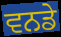
ਵਨਡੇ